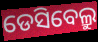
ଡେସିବେଲ୍ରୁ